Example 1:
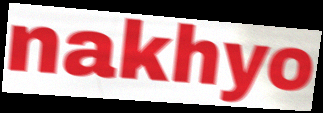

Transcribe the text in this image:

nakhyo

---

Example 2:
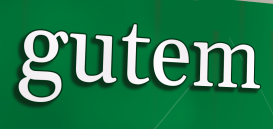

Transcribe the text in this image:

gutem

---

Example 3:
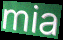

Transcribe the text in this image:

mia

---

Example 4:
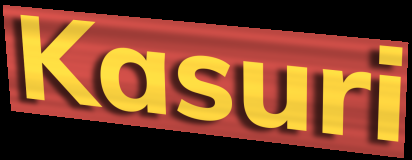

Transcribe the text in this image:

Kasuri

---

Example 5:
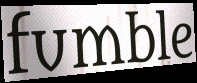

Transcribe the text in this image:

fumble